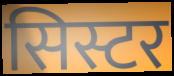
सिस्टर